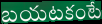
బయటకంటే